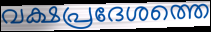
വക്ഷപ്രദേശത്തെ